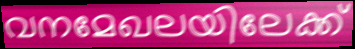
വനമേഖലയിലേക്ക്